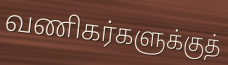
வணிகர்களுக்குத்